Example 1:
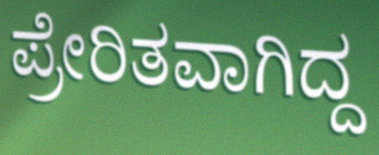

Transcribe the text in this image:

ಪ್ರೇರಿತವಾಗಿದ್ದ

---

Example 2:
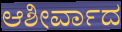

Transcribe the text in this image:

ಆಶೀರ್ವಾದ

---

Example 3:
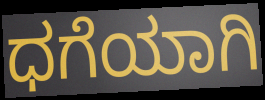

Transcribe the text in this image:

ಧಗೆಯಾಗಿ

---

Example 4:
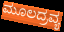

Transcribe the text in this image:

ಮೂಲದ್ರವ್ಯ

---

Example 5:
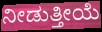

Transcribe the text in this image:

ನೀಡುತ್ತೀಯೆ